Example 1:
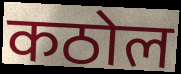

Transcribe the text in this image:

कठोल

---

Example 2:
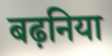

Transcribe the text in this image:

बढ़निया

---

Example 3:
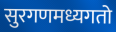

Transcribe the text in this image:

सुरगणमध्यगतो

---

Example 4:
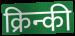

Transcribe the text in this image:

क्रिन्की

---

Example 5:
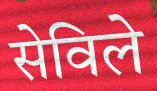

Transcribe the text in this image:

सेविले